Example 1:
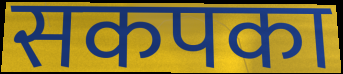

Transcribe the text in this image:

सकपका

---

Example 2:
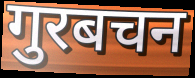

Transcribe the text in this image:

गुरबचन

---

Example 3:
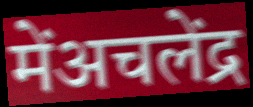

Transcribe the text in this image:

मेंअचलेंद्र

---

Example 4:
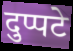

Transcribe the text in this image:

दुप्पटे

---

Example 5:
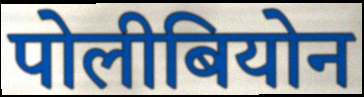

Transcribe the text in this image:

पोलीबियोन